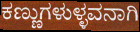
ಕಣ್ಣುಗಳುಳ್ಳವನಾಗಿ